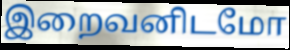
இறைவனிடமோ